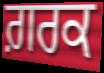
ਗ਼ਰਕ